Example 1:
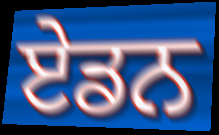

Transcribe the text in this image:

ਏਡਨ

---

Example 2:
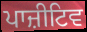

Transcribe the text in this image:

ਪਾਜ਼ੀਟਿਵ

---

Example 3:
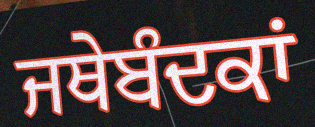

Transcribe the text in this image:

ਜਥੇਬੰਦਕਾਂ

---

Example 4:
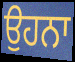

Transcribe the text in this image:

ਉਹਨਾ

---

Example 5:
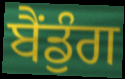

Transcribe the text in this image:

ਬੈਂਡੁੰਗ